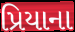
પ્રિયાના